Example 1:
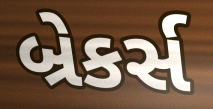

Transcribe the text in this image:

બ્રેકર્સ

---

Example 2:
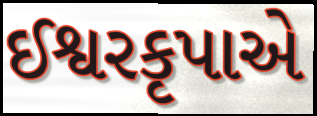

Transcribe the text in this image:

ઈશ્વરકૃપાએ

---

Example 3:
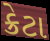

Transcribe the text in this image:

ક્રેટા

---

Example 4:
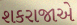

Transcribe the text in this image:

શકરાજાએ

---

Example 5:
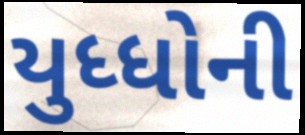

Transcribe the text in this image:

યુધ્ધોની